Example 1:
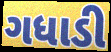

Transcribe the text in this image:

ગધાડી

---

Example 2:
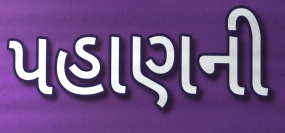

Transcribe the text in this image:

પહાણની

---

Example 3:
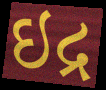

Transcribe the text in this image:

ઇદ્ર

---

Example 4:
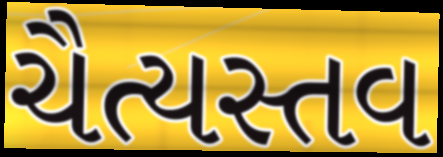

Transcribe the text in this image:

ચૈત્યસ્તવ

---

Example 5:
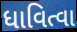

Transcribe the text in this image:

ધાવિત્વા